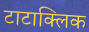
टाटाक्लिक